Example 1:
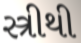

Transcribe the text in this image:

સ્ત્રીથી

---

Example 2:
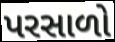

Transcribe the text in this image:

પરસાળો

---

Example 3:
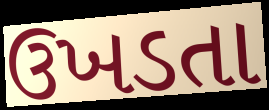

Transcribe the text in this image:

ઉખડતા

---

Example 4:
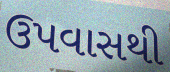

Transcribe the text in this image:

ઉપવાસથી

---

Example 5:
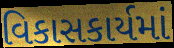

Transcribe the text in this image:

વિકાસકાર્યમાં